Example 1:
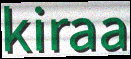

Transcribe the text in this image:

kiraa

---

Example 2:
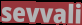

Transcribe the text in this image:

sevvali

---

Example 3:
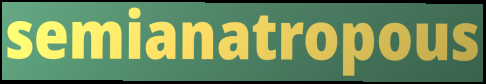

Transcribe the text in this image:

semianatropous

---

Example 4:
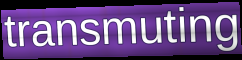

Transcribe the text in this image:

transmuting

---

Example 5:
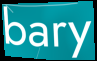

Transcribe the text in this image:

bary